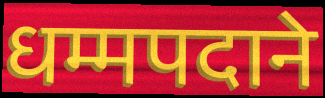
धम्मपदाने